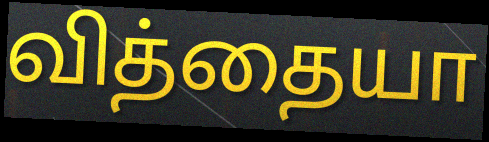
வித்தையா